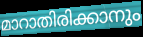
മാറാതിരിക്കാനും